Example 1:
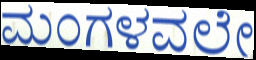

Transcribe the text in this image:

ಮಂಗಳವಲೇ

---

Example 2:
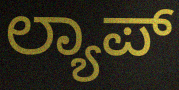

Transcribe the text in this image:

ಲ್ಯಾಪ್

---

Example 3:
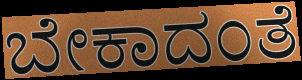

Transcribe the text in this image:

ಬೇಕಾದಂತೆ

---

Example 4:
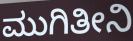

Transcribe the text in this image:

ಮುಗಿತೀನಿ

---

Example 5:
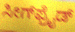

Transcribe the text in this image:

ಸೀಗ್‌ಫ್ರೈಡ್